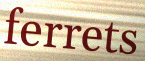
ferrets